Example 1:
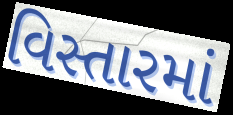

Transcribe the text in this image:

વિસ્તારમાં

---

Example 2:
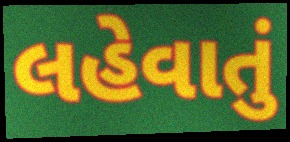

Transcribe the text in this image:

લહેવાતું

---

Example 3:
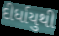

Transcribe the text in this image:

દીર્ધાયુથી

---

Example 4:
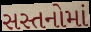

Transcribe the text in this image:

સસ્તનોમાં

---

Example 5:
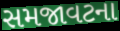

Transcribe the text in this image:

સમજાવટના